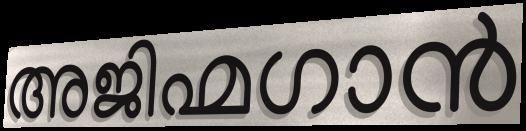
അജിഹ്മഗാൻ